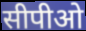
सीपीओ